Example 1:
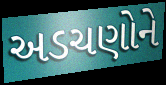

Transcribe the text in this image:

અડચણોને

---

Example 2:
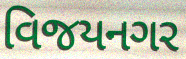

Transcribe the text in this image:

વિજયનગર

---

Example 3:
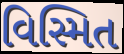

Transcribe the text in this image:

વિસ્મિત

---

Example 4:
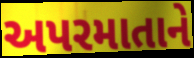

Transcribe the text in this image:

અપરમાતાને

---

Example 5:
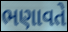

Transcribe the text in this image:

ભણાવતે